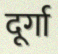
दूर्गा